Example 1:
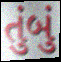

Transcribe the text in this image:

તુંબું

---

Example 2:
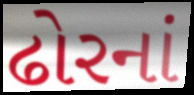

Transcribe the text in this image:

ઢોરનાં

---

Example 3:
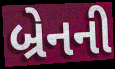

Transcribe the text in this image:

બ્રેનની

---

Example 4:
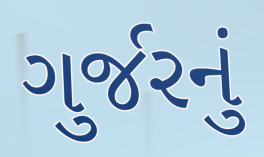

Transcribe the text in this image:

ગુર્જરનું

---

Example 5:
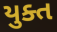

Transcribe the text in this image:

યુક્ત